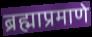
ब्रह्माप्रमाणे